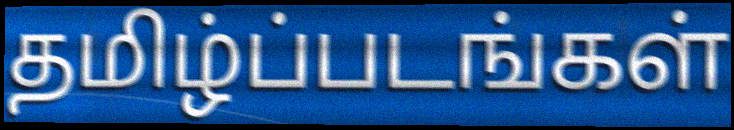
தமிழ்ப்படங்கள்